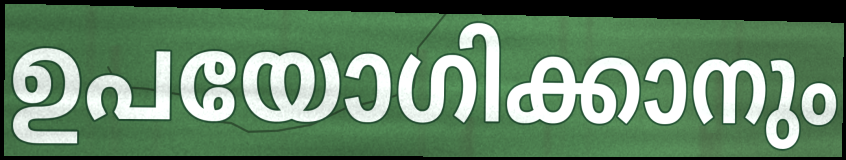
ഉപയോഗിക്കാനും